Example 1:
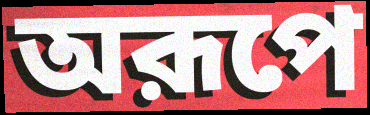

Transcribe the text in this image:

অরূপে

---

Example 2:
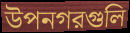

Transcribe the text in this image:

উপনগরগুলি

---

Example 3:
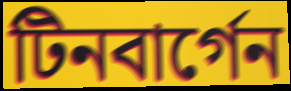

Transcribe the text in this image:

টিনবার্গেন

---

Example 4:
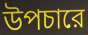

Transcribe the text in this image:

উপচারে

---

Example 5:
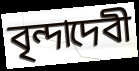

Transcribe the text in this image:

বৃন্দাদেবী